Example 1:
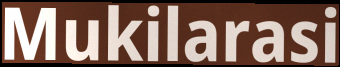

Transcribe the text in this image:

Mukilarasi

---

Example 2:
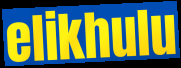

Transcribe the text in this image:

elikhulu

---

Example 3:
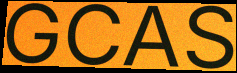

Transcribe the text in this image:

GCAS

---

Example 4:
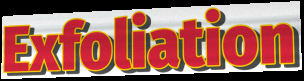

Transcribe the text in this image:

Exfoliation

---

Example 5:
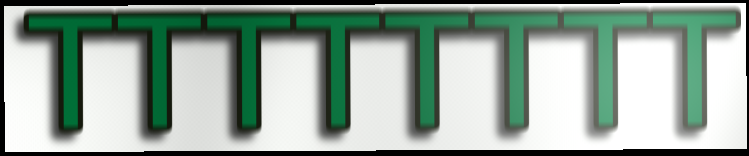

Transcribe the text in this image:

TTTTTTTT